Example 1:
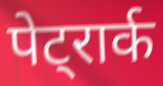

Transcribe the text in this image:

पेट्रार्क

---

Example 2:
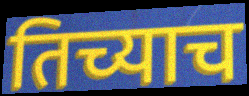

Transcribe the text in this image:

तिच्याच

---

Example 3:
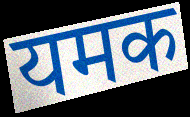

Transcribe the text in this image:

यमक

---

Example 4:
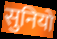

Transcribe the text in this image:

सुनियो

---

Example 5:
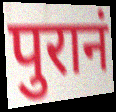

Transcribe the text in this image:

पुरानं